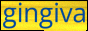
gingiva